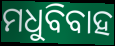
ମଧୁବିବାହ